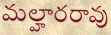
మల్హారరావు